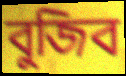
বুজিব